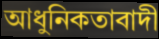
আধুনিকতাবাদী